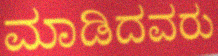
ಮಾಡಿದವರು